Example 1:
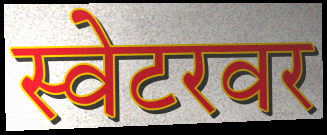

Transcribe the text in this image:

स्वेटरवर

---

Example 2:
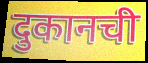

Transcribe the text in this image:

दुकानची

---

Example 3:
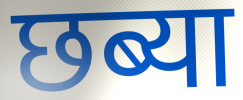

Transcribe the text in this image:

छब्या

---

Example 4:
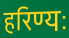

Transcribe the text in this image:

हरिण्यः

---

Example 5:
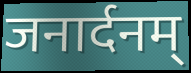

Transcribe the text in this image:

जनार्दनम्